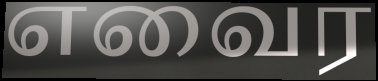
எவைர